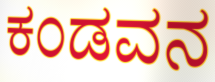
ಕಂಡವನ